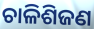
ଚାଳିଶିଜଣ